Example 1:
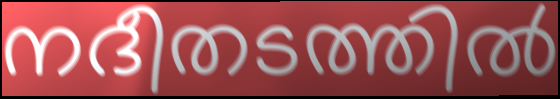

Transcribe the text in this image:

നദീതടത്തിൽ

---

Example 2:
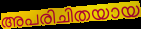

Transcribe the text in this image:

അപരിചിതയായ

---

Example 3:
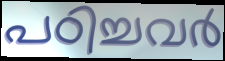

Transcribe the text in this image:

പഠിച്ചവർ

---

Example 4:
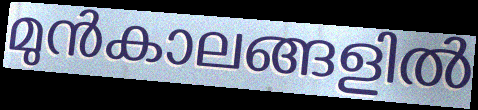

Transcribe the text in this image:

മുൻകാലങ്ങളിൽ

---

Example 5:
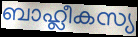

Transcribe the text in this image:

ബാഹ്ലീകസ്യ